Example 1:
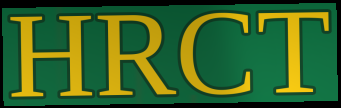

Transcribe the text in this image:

HRCT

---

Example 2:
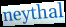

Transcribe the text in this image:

neythal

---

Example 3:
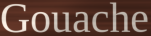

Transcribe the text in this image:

Gouache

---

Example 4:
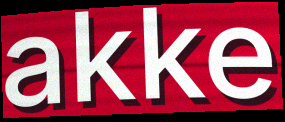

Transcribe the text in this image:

akke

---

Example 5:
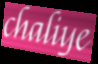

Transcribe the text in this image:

chaliye